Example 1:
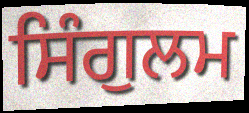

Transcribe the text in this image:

ਸਿੰਗੁਲਮ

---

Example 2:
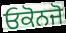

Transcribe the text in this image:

ਓਕੋਨਜੋ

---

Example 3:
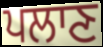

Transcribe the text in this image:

ਪਲਾਣ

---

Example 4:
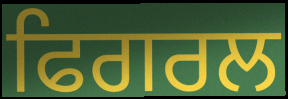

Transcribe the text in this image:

ਫਿਗਰਲ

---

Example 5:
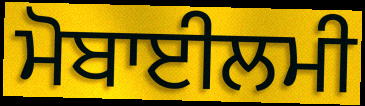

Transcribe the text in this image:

ਮੋਬਾਈਲਮੀ